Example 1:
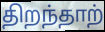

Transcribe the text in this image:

திறந்தாற்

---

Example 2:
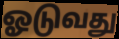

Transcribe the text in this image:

ஓடுவது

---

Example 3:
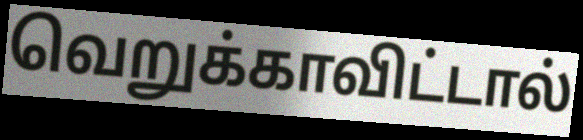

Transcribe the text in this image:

வெறுக்காவிட்டால்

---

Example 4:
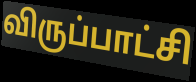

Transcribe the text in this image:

விருப்பாட்சி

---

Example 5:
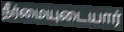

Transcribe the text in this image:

நீர்மையுடையார்